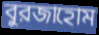
বুরজাহোম